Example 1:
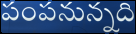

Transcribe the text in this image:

పంపనున్నది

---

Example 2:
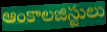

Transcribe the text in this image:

ఆంకాలజిస్టులు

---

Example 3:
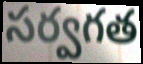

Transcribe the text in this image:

సర్వగత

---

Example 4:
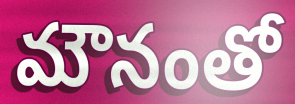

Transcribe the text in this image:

మౌనంతో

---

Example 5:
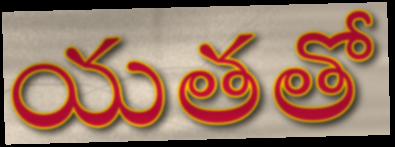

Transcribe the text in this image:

యతతో